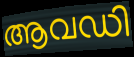
ആവഡി